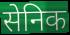
सेनिक